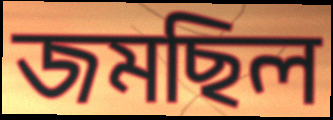
জমছিল